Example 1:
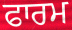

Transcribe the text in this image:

ਫਾਰਮ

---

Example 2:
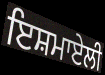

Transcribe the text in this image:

ਇਸ਼ਮਾਏਲੀ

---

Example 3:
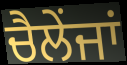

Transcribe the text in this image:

ਚੈਲੇਂਜਾਂ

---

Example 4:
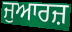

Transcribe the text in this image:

ਜੁਆਰਜ਼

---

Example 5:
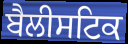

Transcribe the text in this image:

ਬੈਲੀਸਟਿਕ